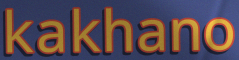
kakhano